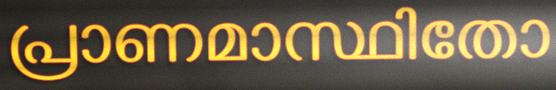
പ്രാണമാസ്ഥിതോ